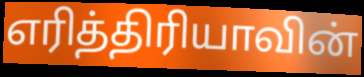
எரித்திரியாவின்